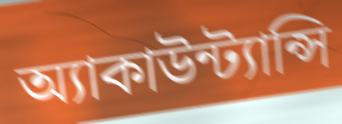
অ্যাকাউন্ট্যান্সি